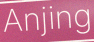
Anjing